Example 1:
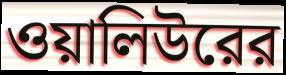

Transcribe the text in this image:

ওয়ালিউরের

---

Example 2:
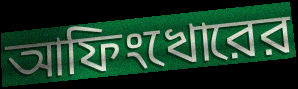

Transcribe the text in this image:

আফিংখোরের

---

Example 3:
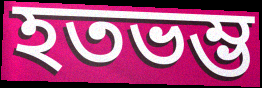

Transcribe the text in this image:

হতভম্ভ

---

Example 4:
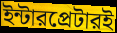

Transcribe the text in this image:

ইন্টারপ্রেটারই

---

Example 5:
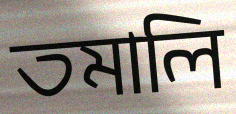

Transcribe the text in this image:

তমালি